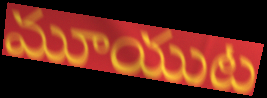
మూయుట